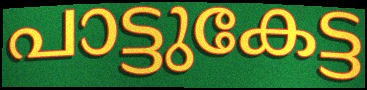
പാട്ടുകേട്ട